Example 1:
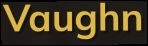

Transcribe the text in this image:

Vaughn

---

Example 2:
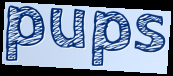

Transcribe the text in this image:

pups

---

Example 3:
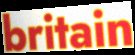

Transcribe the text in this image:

britain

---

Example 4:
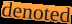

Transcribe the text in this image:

denoted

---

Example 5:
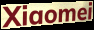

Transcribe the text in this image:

Xiaomei